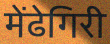
मेंढेगिरी